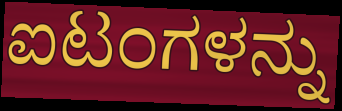
ಐಟಂಗಳನ್ನು